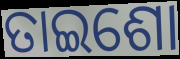
ତାଇଶୋ